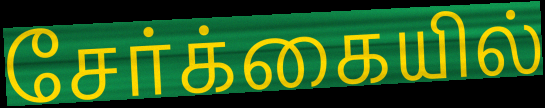
சேர்க்கையில்